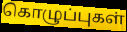
கொழுப்புகள்